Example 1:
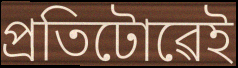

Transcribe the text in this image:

প্ৰতিটোৱেই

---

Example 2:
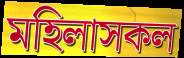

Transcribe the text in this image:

মহিলাসকল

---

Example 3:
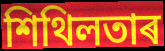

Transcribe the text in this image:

শিথিলতাৰ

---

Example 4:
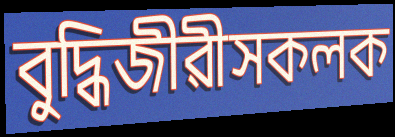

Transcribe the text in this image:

বুদ্ধিজীৱীসকলক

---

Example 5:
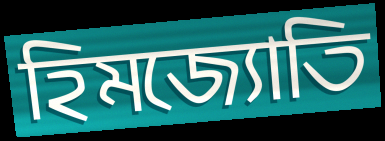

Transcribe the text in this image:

হিমজ্যোতি